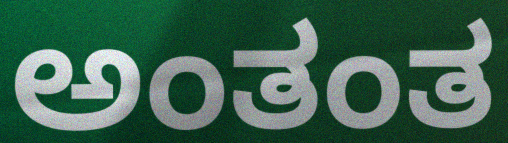
ಅಂತಂತ